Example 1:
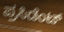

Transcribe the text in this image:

ಪ್ರಸಿಡೆಂಟ್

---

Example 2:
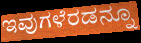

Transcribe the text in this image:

ಇವುಗಳೆರಡನ್ನೂ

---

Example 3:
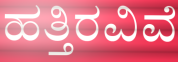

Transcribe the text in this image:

ಹತ್ತಿರವಿವೆ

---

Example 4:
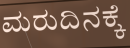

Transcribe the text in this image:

ಮರುದಿನಕ್ಕೆ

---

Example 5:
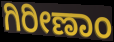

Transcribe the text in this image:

ಗಿರೀಣಾಂ